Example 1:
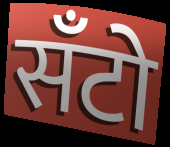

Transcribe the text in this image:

सँटो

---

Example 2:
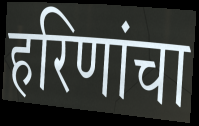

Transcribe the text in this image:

हरिणांचा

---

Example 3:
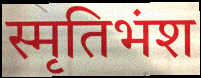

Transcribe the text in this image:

स्मृतिभंश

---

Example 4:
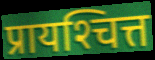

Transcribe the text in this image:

प्रायश्चित्त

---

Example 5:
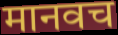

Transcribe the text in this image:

मानवच